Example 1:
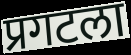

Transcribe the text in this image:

प्रगटला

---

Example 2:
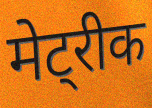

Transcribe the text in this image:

मेट्रीक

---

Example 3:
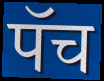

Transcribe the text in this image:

पॅच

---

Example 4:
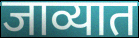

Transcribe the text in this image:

जाव्यात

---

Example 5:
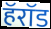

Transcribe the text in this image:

हॅरॉड